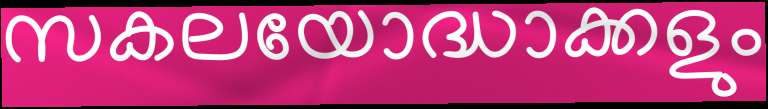
സകലയോദ്ധാക്കളും